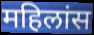
महिलांस